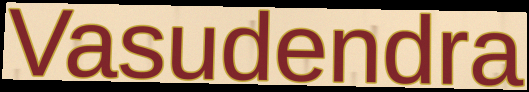
Vasudendra